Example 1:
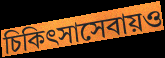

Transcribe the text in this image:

চিকিৎসাসেবায়ও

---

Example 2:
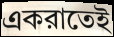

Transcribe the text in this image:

একরাতেই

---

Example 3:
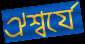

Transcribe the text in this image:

ঐশ্বর্যে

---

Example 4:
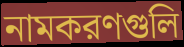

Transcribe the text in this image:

নামকরণগুলি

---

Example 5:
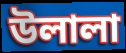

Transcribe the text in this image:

উলালা